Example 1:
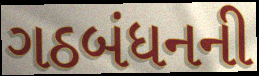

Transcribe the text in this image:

ગઠબંધનની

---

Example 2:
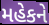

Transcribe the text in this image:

મહેકને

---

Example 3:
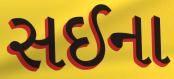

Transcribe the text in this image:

સઈના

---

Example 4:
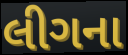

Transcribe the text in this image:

લીગના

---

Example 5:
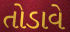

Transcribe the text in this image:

તોડાવે